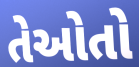
તેઓતો